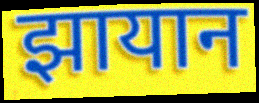
झायान